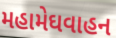
મહામેઘવાહન